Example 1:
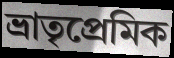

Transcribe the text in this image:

ভ্রাতৃপ্রেমিক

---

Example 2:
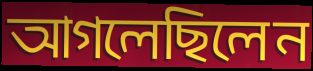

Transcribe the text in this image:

আগলেছিলেন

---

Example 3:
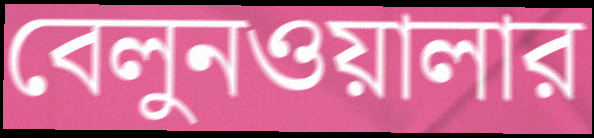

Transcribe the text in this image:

বেলুনওয়ালার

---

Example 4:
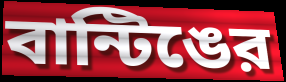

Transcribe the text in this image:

বান্টিঙের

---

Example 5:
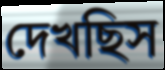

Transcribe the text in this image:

দেখছিস